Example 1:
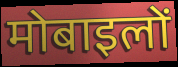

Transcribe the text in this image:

मोबाइलों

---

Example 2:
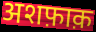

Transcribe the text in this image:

अशफ़ाक़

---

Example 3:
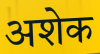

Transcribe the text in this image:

अशेक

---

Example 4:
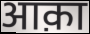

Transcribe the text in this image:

आक़ा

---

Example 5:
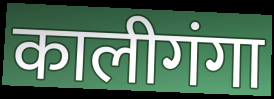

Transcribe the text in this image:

कालीगंगा